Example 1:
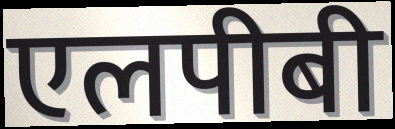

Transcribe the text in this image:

एलपीबी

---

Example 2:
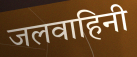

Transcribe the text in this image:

जलवाहिनी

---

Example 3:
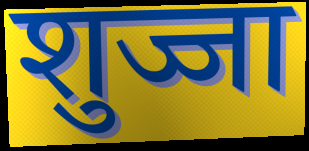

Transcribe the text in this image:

शुज्जा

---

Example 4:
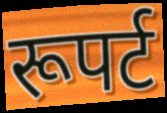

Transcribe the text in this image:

रूपर्ट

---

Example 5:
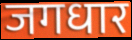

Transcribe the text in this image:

जगधार